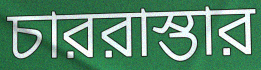
চাররাস্তার